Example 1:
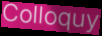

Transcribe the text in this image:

Colloquy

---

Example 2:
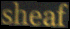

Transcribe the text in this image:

sheaf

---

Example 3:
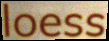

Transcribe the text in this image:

loess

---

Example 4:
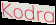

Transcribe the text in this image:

Kodra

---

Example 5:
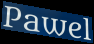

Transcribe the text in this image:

Pawel